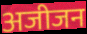
अजीजन